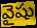
వైషు